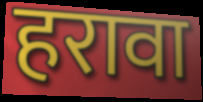
हरावा